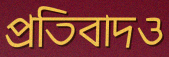
প্রতিবাদও